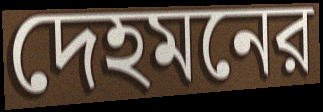
দেহমনের